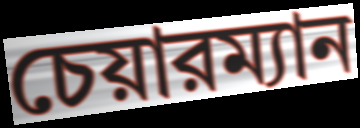
চেয়ারম্যান